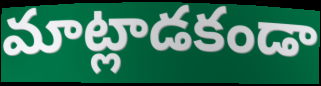
మాట్లాడకండా